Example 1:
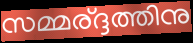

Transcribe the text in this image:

സമ്മര്ദ്ദത്തിനു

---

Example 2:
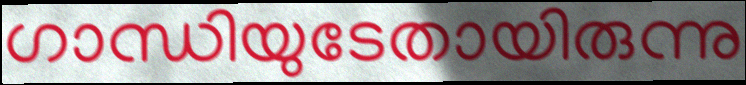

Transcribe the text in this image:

ഗാന്ധിയുടേതായിരുന്നു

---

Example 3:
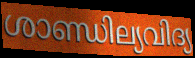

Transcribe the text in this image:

ശാണ്ഡില്യവിദ്യ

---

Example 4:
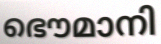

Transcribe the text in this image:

ഭൌമാനി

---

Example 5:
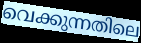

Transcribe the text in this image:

വെക്കുന്നതിലെ